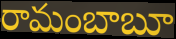
రామంబాబూ